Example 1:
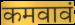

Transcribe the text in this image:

कमवावं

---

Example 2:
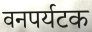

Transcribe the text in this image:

वनपर्यटक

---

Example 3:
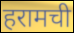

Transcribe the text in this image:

हरामची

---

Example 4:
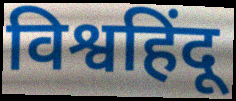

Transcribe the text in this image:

विश्वहिंदू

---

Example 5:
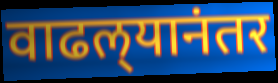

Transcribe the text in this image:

वाढल्यानंतर